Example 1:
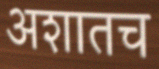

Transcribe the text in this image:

अशातच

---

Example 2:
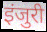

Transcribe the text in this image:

इंजुरी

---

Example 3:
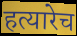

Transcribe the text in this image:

हत्यारेच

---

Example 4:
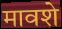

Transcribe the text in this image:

मावशे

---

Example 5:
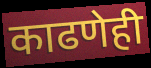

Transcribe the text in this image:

काढणेही